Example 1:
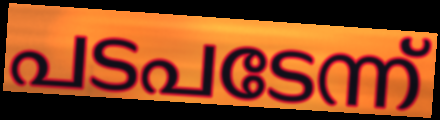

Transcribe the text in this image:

പടപടേന്ന്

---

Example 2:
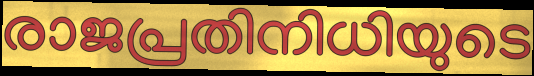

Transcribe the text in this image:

രാജപ്രതിനിധിയുടെ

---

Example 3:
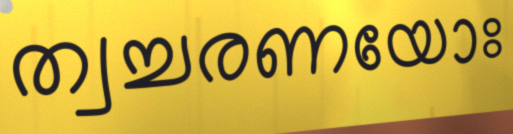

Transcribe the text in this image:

ത്വച്ചരണയോഃ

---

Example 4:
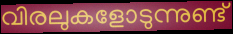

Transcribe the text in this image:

വിരലുകളോടുന്നുണ്ട്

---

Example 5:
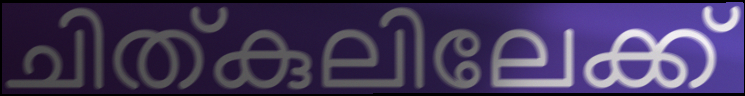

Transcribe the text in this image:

ചിത്കുലിലേക്ക്